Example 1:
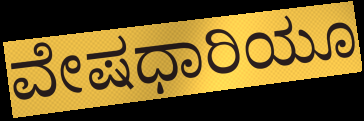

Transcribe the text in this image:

ವೇಷಧಾರಿಯೂ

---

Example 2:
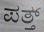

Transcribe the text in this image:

ಪತ್ತ್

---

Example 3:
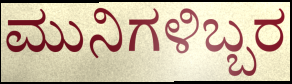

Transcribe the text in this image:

ಮುನಿಗಳಿಬ್ಬರ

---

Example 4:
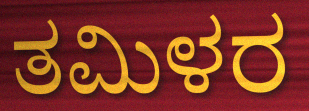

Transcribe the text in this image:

ತಮಿಳರ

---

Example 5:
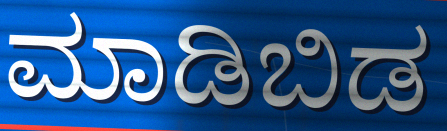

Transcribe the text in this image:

ಮಾಡಿಬಿಡ